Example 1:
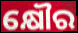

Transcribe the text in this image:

କ୍ଷୌର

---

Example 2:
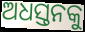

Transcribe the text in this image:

ଅଧସ୍ତନକୁ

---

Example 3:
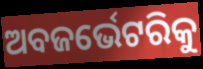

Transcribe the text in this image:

ଅବଜର୍ଭେଟରିକୁ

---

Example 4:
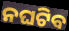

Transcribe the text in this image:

ନଘଟିବ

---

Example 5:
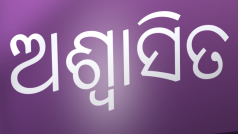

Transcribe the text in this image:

ଅଶ୍ୱାସିତ